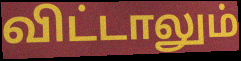
விட்டாலும்